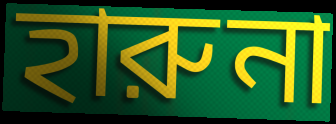
হারুনা